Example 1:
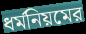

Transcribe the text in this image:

ধর্মনিয়মের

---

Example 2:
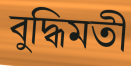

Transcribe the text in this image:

বুদ্ধিমতী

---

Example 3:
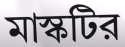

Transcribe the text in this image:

মাস্কটির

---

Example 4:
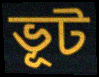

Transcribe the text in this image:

ভূট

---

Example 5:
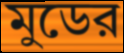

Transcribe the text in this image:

মুডের